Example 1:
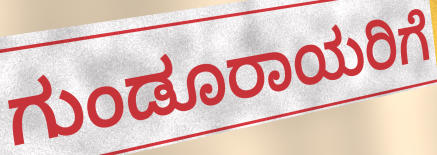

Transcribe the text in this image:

ಗುಂಡೂರಾಯರಿಗೆ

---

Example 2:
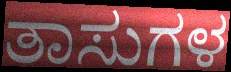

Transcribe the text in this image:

ತಾಸುಗಳ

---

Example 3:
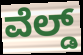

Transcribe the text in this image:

ವೆಲ್ಡ್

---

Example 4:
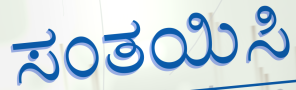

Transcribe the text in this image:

ಸಂತಯಿಸಿ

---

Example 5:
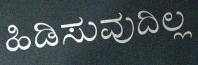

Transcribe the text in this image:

ಹಿಡಿಸುವುದಿಲ್ಲ